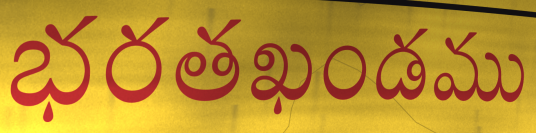
భరతఖండము